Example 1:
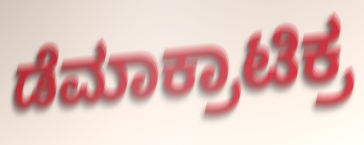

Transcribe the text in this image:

ಡೆಮಾಕ್ರಾಟಿಕ್ರ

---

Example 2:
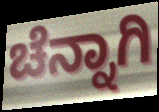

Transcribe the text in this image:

ಚೆನ್ನಾಗಿ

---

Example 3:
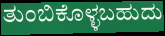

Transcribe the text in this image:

ತುಂಬಿಕೊಳ್ಳಬಹುದು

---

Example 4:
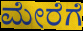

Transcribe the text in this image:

ಮೇರೆಗೆ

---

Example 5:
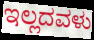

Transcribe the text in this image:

ಇಲ್ಲದವಳು